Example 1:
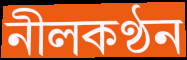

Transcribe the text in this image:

নীলকণ্ঠন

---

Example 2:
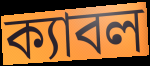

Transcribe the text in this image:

ক্যাবল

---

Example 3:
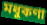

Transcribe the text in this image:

মধুকণা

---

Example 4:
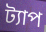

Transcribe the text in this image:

ট্যাপ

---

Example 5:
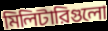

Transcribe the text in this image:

মিলিটারিগুলো